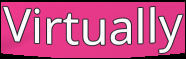
Virtually